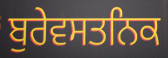
ਬੁਰੇਵਸਤਨਿਕ